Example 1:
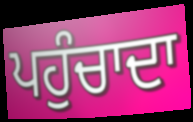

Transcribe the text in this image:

ਪਹੁੰਚਾਦਾ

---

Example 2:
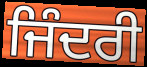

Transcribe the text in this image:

ਜਿੰਦਰੀ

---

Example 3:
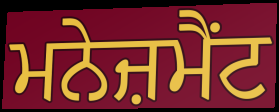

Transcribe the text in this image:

ਮਨੇਜ਼ਮੈਂਟ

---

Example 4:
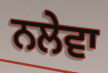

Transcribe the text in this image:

ਨਲੇਵਾ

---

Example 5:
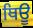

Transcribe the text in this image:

ਥਿਊ